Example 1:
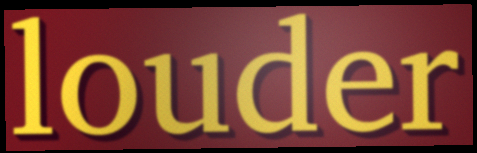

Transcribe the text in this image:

louder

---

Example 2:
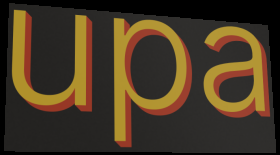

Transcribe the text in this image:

upa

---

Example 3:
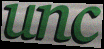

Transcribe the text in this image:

unc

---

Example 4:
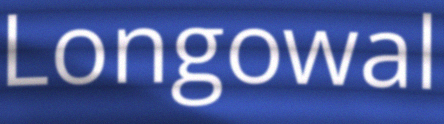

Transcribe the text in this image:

Longowal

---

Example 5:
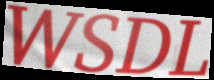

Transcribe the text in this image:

WSDL